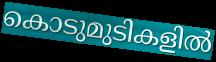
കൊടുമുടികളിൽ